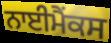
ਨਾਈਮੈਂਕਸ